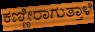
ಕಣ್ಣೀರಾಗುತ್ತಾಳೆ